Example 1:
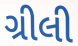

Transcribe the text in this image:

ગ્રીલી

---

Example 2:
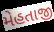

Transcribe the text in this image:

મેહતાજી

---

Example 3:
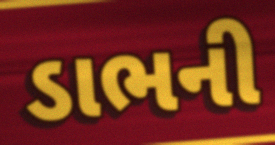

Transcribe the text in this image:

ડાભની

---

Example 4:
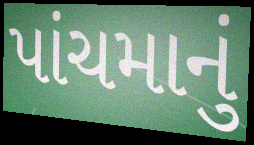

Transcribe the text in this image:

પાંચમાનું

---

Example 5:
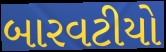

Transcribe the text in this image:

બારવટીયો